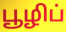
பூழிப்